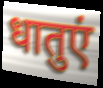
धातुएं